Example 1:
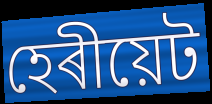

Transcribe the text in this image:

হেৰীয়েট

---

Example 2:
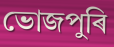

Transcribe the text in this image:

ভোজপুৰি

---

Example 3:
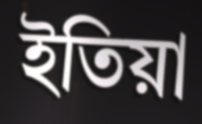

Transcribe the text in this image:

ইতিয়া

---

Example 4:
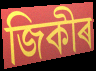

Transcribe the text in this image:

জিকীৰ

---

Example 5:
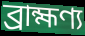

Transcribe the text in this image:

ব্ৰাহ্মণ্য